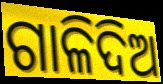
ଗାଳିଦିଅ